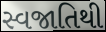
સ્વજાતિથી